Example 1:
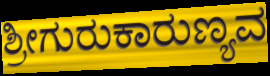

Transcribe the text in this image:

ಶ್ರೀಗುರುಕಾರುಣ್ಯವ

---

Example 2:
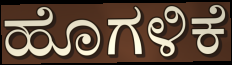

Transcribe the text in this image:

ಹೊಗಳಿಕೆ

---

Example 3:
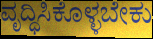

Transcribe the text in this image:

ವೃದ್ಧಿಸಿಕೊಳ್ಳಬೇಕು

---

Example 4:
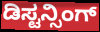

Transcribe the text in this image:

ಡಿಸ್ಟನ್ಸಿಂಗ್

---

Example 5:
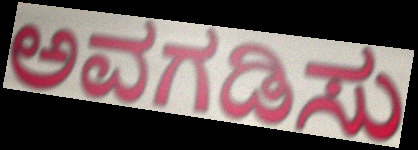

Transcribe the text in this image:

ಅವಗಡಿಸು